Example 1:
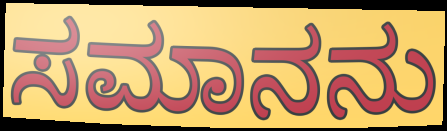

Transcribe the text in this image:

ಸಮಾನನು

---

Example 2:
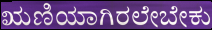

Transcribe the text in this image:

ಋಣಿಯಾಗಿರಲೇಬೇಕು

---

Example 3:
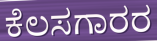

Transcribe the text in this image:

ಕೆಲಸಗಾರರ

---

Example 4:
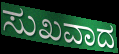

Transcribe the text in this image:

ಸುಖವಾದ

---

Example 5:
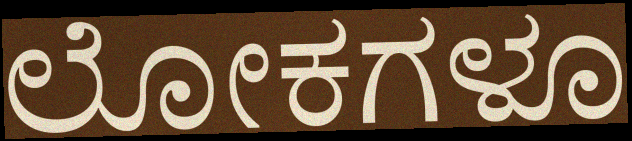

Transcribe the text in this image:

ಲೋಕಗಳೂ